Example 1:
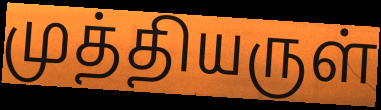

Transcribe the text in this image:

முத்தியருள்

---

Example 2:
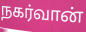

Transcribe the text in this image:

நகர்வான்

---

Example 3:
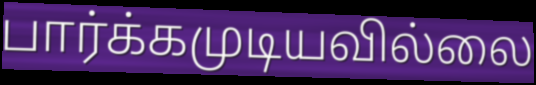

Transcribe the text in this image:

பார்க்கமுடியவில்லை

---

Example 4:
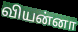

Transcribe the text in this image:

வியன்னா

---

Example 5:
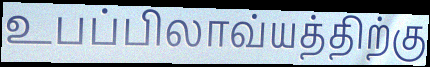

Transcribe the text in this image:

உபப்பிலாவ்யத்திற்கு